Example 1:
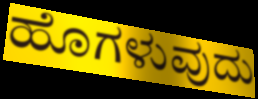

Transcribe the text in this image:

ಹೊಗಳುವುದು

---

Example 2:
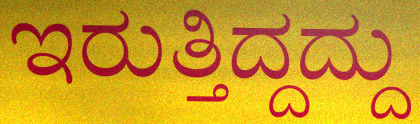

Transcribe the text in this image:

ಇರುತ್ತಿದ್ದದ್ದು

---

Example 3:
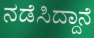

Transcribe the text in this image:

ನಡೆಸಿದ್ದಾನೆ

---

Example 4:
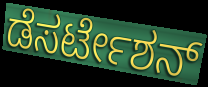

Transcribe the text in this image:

ಡೆಸರ್ಟೇಶನ್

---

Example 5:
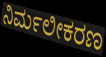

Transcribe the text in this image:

ನಿರ್ಮಲೀಕರಣ